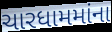
ચારધામમાંના